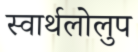
स्वार्थलोलुप